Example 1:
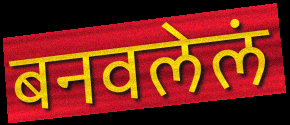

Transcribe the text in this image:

बनवलेलं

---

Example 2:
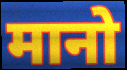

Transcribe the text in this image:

मानो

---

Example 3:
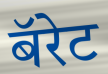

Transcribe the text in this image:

बॅरेट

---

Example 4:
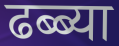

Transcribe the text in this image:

ढब्ब्या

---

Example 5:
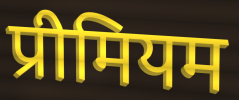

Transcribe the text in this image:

प्रीमियम